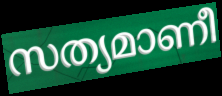
സത്യമാണീ